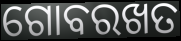
ଗୋବରଖତ